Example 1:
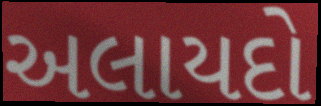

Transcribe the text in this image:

અલાયદો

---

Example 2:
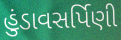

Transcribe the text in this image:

હુંડાવસર્પિણી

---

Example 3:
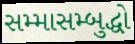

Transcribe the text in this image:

સમ્માસમ્બુદ્ધો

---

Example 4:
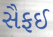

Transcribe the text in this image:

સૈફઈ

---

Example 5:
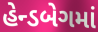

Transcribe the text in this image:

હેન્ડબેગમાં